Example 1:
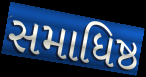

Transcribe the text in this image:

સમાધિષ્ઠ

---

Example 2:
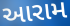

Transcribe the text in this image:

આરામ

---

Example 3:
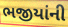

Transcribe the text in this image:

ભજીયાંની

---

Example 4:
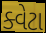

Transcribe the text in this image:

ક્વેટા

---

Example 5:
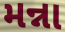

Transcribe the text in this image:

મન્ના